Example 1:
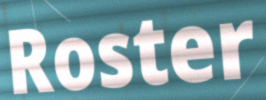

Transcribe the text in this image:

Roster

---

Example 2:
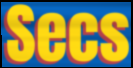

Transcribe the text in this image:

Secs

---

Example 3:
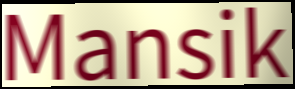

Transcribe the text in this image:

Mansik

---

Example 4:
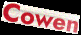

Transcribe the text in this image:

Cowen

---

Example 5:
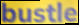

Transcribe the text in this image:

bustle